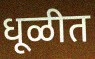
धूळीत